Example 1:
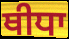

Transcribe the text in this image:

ਥੀਧਾ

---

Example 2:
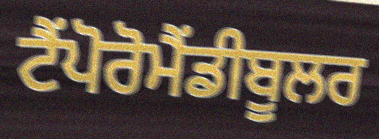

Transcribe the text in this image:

ਟੈਂਪੋਰੋਮੈਂਡੀਬੂਲਰ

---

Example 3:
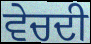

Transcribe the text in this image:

ਵੇਚਦੀ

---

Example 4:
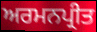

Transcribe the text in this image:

ਅਰਮਨਪ੍ਰੀਤ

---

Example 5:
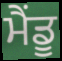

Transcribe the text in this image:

ਮੈਂਡੂ